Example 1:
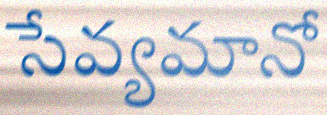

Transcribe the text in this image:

సేవ్యమానో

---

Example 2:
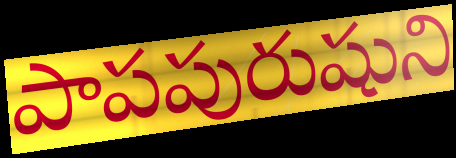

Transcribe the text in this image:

పాపపురుషుని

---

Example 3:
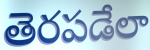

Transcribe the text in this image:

తెరపడేలా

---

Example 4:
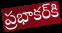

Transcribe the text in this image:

ప్రభాకర్‌కి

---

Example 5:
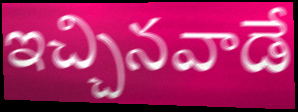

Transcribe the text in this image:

ఇచ్చినవాడే